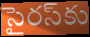
సైరస్‌కు